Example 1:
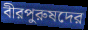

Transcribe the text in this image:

বীরপুরুষদের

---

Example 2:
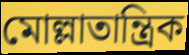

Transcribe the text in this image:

মোল্লাতান্ত্রিক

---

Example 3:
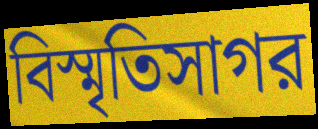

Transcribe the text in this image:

বিস্মৃতিসাগর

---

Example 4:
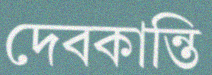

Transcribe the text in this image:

দেবকান্তি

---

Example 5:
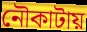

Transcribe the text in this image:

নৌকাটায়